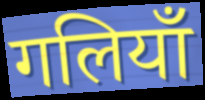
गलियाँ